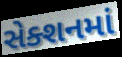
સેક્શનમાં